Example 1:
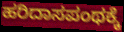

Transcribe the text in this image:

ಹರಿದಾಸಪಂಥಕ್ಕೆ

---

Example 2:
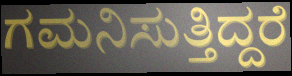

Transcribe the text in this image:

ಗಮನಿಸುತ್ತಿದ್ದರೆ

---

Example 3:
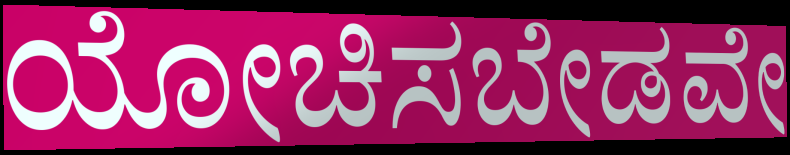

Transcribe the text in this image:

ಯೋಚಿಸಬೇಡವೇ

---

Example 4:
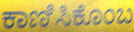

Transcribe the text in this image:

ಕಾಣಿಸಿಕೊಂಬ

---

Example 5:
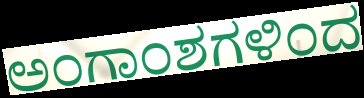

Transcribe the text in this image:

ಅಂಗಾಂಶಗಳಿಂದ